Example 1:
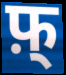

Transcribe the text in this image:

फ़्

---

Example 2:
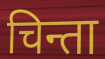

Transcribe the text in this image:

चिन्ता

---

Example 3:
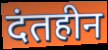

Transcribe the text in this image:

दंतहीन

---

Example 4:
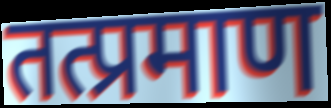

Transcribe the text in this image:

तत्प्रमाण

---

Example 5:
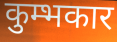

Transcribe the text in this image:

कुम्भकार